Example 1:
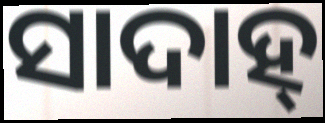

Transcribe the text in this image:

ସାଦାହ୍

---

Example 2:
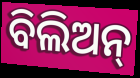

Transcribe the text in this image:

ବିଲିଅନ୍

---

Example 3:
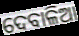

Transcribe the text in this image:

ଦେବାଳିଆ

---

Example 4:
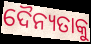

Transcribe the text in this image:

ଦୈନ୍ୟତାକୁ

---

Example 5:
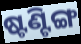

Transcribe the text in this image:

ଷ୍ଟଣ୍ଟିଙ୍ଗ